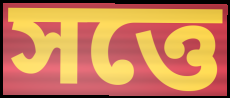
সত্তে